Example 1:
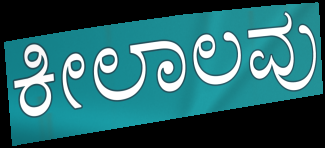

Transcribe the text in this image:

ಕೀಲಾಲವು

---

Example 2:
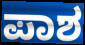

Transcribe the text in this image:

ಪಾಶ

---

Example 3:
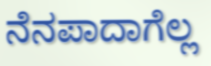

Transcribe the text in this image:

ನೆನಪಾದಾಗೆಲ್ಲ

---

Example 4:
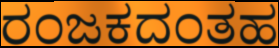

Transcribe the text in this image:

ರಂಜಕದಂತಹ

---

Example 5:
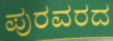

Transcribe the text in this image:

ಪುರವರದ